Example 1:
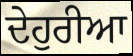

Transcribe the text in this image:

ਦੇਹੁਰੀਆ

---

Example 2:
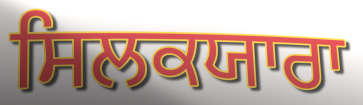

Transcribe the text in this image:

ਸਿਲਕਯਾਰਾ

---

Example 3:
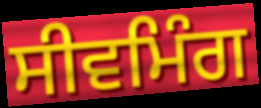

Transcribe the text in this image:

ਸੀਵਮਿੰਗ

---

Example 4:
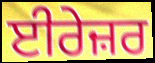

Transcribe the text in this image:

ਈਰੇਜ਼ਰ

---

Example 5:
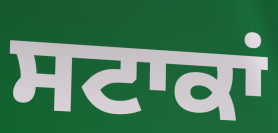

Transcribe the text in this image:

ਸਟਾਕਾਂ